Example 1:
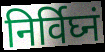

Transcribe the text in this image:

निर्विघ्नं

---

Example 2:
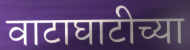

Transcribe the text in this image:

वाटाघाटीच्या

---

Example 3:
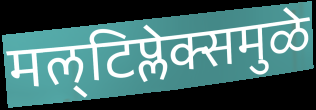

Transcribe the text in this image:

मल्टिप्लेक्समुळे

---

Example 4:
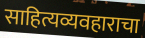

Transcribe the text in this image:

साहित्यव्यवहाराचा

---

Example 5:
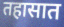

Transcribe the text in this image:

तहासात